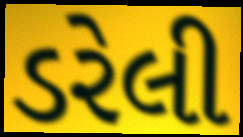
ડરેલી